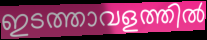
ഇടത്താവളത്തിൽ